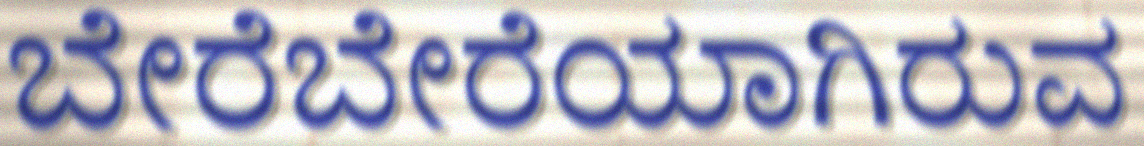
ಬೇರೆಬೇರೆಯಾಗಿರುವ